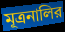
মূত্রনালির